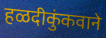
हळदीकुंकवाने